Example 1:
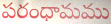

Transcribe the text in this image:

పరంధామము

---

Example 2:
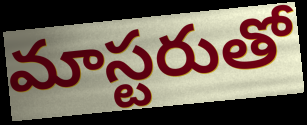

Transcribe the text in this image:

మాస్టరుతో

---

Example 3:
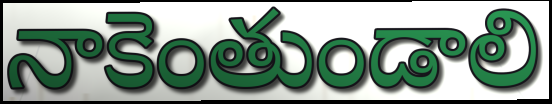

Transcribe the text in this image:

నాకెంతుండాలి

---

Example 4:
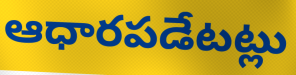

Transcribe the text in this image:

ఆధారపడేటట్లు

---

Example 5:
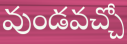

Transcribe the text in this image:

వుండవచ్చో